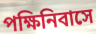
পক্ষিনিবাসে